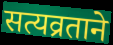
सत्यव्रताने